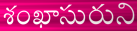
శంఖాసురుని